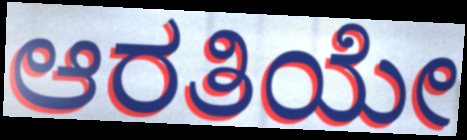
ಆರತಿಯೇ